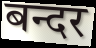
बन्दर